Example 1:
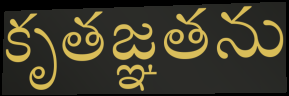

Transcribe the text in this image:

కృతజ్ఞతను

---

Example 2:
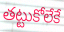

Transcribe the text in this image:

తట్టుకోలేకే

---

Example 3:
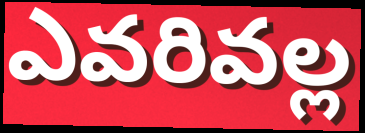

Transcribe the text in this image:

ఎవరివల్ల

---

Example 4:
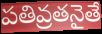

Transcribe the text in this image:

పతివ్రతనైతే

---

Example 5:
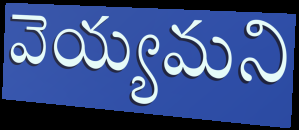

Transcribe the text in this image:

వెయ్యమని